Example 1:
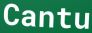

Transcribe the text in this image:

Cantu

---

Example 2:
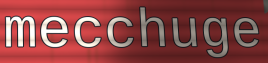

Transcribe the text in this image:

mecchuge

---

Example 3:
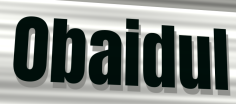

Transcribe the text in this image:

Obaidul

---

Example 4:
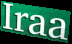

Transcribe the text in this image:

Iraa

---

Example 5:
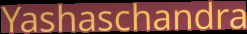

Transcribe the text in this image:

Yashaschandra